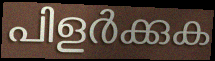
പിളർക്കുക